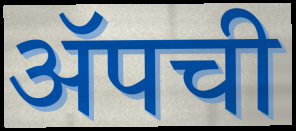
ॲपची